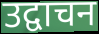
उद्वाचन